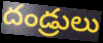
దండ్రులు